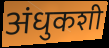
अंधुकशी